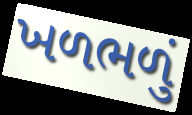
ખળભળું